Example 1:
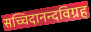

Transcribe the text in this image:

सच्चिदानन्दविग्रह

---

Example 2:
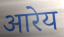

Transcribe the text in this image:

आरेय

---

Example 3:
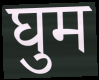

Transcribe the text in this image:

घुम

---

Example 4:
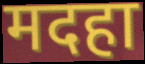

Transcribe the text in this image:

मदहा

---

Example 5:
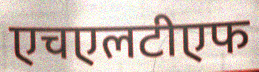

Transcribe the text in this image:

एचएलटीएफ